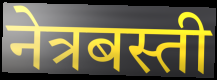
नेत्रबस्ती